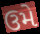
ઉમે